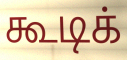
கூடிக்